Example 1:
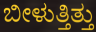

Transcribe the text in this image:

ಬೀಳುತ್ತಿತ್ತು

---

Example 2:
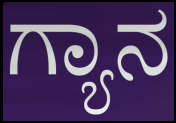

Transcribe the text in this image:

ಗ್ಯಾನ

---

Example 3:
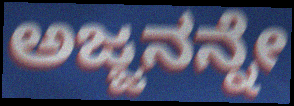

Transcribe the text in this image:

ಅಜ್ಜನನ್ನೇ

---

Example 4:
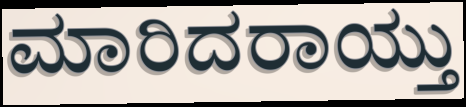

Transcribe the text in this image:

ಮಾರಿದರಾಯ್ತು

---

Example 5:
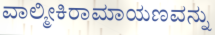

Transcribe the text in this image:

ವಾಲ್ಮೀಕಿರಾಮಾಯಣವನ್ನು